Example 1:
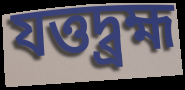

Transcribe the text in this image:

যত্তদ্ব্রহ্ম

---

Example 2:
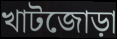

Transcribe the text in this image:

খাটজোড়া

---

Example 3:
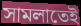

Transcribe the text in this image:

সামলাতেই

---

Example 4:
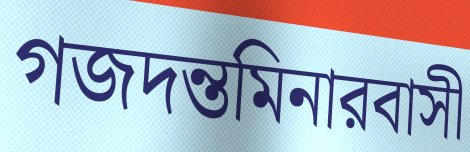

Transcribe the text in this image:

গজদন্তমিনারবাসী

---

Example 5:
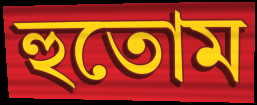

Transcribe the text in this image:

হুতোম